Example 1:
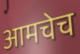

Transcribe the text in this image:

आमचेच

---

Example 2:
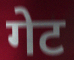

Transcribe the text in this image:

गेट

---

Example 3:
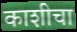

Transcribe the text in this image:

काशीचा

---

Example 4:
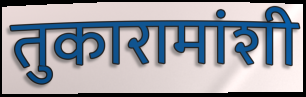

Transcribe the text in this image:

तुकारामांशी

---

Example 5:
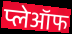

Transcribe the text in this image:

प्लेऑफ